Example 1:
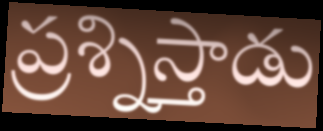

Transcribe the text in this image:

ప్రశ్నిస్తాడు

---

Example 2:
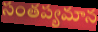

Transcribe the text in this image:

సంతప్యమాన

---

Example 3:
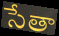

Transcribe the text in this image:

సేతా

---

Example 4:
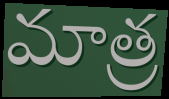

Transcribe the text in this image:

మాత్ర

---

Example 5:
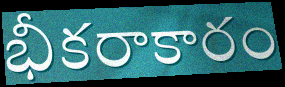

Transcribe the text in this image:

భీకరాకారం